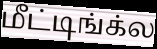
மீட்டிங்க்ல